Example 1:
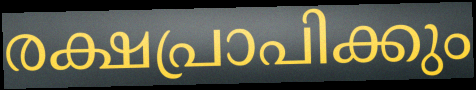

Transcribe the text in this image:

രക്ഷപ്രാപിക്കും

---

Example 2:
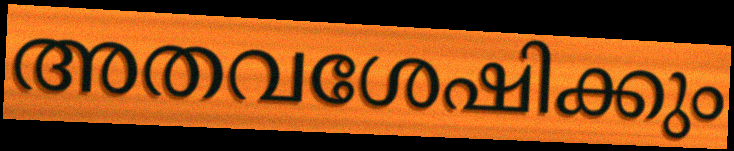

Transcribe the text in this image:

അതവശേഷിക്കും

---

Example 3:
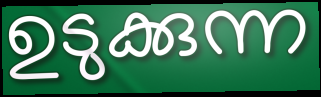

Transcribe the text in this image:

ഉടുക്കുന്ന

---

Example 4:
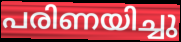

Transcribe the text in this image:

പരിണയിച്ചു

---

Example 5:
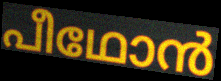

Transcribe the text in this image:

പീഥോൻ